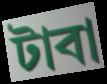
টাবা